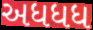
અધધધ